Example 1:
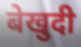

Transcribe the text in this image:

बेखुदी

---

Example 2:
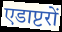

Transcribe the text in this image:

एडाप्टरों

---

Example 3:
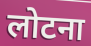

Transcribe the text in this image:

लोटना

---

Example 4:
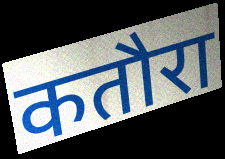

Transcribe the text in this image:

कतौरा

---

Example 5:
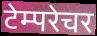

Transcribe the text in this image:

टेम्परेचर